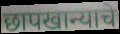
छापखान्याचे